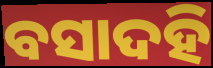
ବସାଦହି